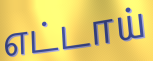
எட்டாய்